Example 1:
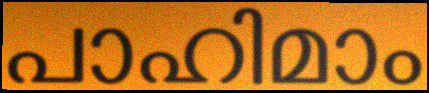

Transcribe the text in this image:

പാഹിമാം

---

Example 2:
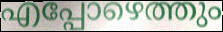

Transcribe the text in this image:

എപ്പോഴെത്തും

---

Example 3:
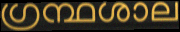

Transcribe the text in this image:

ഗ്രന്ഥശാല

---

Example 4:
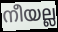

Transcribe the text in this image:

നീയല്ല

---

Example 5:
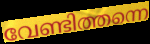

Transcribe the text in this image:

വേണ്ടിത്തന്നെ